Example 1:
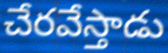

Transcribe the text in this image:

చేరవేస్తాడు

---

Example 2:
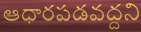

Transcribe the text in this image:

ఆధారపడవద్దని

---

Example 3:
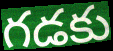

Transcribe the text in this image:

గడకు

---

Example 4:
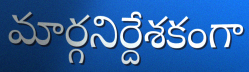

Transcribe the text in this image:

మార్గనిర్దేశకంగా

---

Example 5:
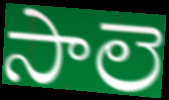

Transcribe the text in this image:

సాలె